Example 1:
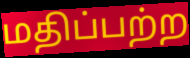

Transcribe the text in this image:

மதிப்பற்ற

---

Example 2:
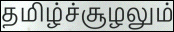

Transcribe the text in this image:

தமிழ்ச்சூழலும்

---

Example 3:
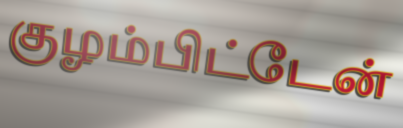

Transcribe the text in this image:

குழம்பிட்டேன்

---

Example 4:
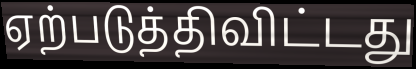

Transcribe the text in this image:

ஏற்படுத்திவிட்டது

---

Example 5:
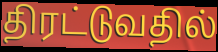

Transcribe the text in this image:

திரட்டுவதில்